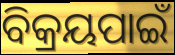
ବିକ୍ରୟପାଇଁ